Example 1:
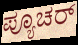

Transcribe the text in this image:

ಪ್ಯೂಚರ್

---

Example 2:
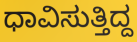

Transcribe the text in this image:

ಧಾವಿಸುತ್ತಿದ್ದ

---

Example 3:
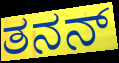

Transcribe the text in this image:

ತನನ್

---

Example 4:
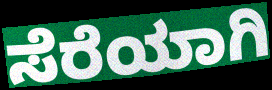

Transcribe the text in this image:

ಸೆರೆಯಾಗಿ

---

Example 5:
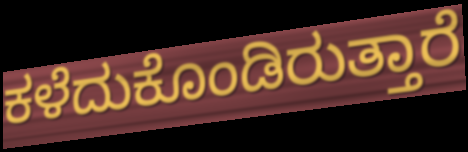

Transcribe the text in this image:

ಕಳೆದುಕೊಂಡಿರುತ್ತಾರೆ